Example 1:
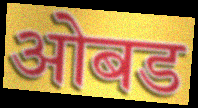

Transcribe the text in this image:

ओबड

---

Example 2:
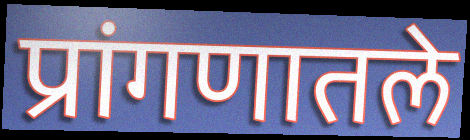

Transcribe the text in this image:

प्रांगणातले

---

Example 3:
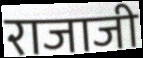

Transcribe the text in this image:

राजाजी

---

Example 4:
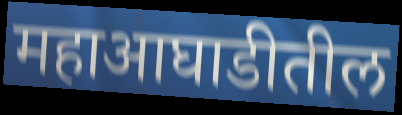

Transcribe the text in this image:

महाआघाडीतील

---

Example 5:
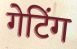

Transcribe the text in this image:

गेटिंग